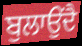
ਬੁਲਾਉਂਦੈ